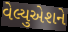
વેલ્યુએશને